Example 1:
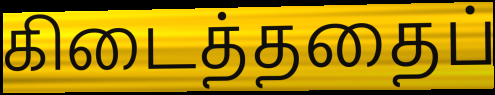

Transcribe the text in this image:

கிடைத்ததைப்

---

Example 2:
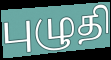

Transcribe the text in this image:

புழுதி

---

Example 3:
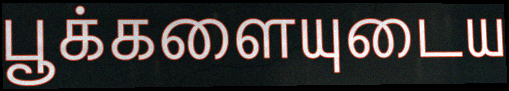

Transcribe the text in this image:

பூக்களையுடைய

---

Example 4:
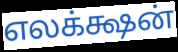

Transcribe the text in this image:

எலக்க்ஷன்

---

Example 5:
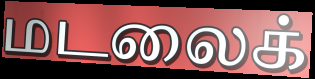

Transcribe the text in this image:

மடலைக்